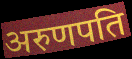
अरुणपति